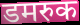
डमरुक